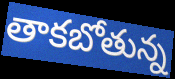
తాకబోతున్న